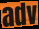
adv